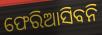
ଫେରିଆସିବନି